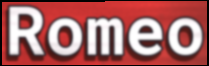
Romeo